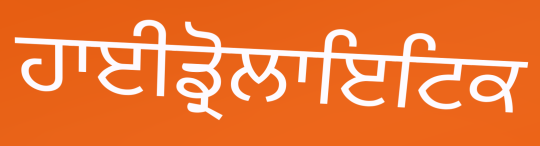
ਹਾਈਡ੍ਰੋਲਾਇਟਿਕ